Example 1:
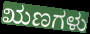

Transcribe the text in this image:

ಋಣಗಳು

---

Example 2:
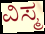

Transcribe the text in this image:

ವಿಸ್ಮ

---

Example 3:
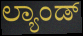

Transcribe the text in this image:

ಲ್ಯಾಂಡ್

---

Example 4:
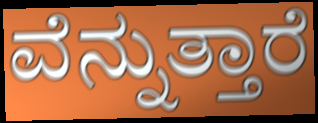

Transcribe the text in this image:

ವೆನ್ನುತ್ತಾರೆ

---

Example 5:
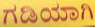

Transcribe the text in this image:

ಗಡಿಯಾಗಿ